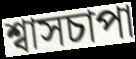
শ্বাসচাপা